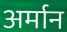
अर्मान